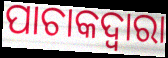
ପାଚାକଦ୍ଵାରା